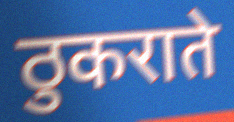
ठुकराते